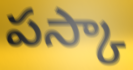
పస్కా